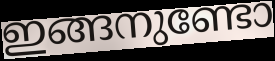
ഇങ്ങനുണ്ടോ